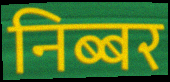
निब्बर